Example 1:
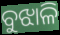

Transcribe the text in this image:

ବୁଝାଳି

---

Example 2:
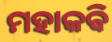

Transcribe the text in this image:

ମହାକଵି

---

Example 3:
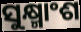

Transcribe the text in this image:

ସୁକ୍ଷ୍ମାଂଶ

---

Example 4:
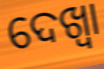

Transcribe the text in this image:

ଦେଖ୍ବା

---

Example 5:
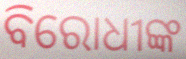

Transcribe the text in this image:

ବିରୋଧୀଙ୍କ